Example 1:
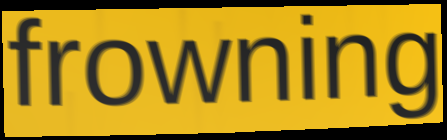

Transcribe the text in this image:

frowning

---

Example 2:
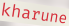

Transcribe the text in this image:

kharune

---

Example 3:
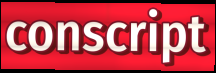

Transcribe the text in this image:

conscript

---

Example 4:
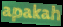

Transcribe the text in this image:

apakah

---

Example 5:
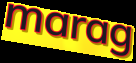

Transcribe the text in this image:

marag